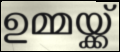
ഉമ്മയ്ക്ക്